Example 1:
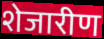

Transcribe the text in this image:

शेजारीण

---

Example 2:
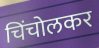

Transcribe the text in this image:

चिंचोलकर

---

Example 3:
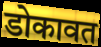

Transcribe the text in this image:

डोकावत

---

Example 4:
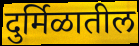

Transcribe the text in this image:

दुर्मिळातील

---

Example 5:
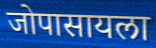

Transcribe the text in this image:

जोपासायला